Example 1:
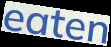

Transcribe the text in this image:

eaten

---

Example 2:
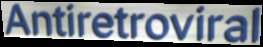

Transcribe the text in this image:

Antiretroviral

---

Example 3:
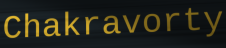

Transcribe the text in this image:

Chakravorty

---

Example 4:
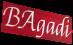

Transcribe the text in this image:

BAgadi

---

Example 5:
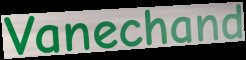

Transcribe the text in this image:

Vanechand